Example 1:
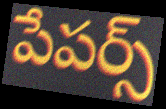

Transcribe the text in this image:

పేపర్స్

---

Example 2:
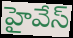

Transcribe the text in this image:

హైవేస్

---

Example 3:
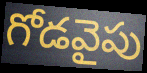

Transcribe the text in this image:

గోడవైపు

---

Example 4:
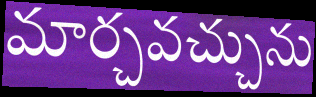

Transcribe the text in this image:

మార్చవచ్చును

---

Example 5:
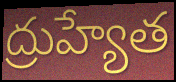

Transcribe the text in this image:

ద్రుహ్యేత